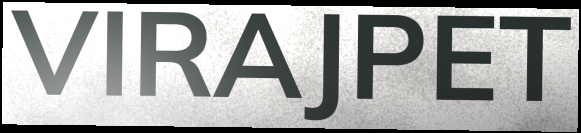
VIRAJPET